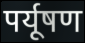
पर्यूषण